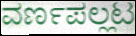
ವರ್ಣಪಲ್ಲಟ